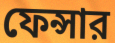
ফেন্সার